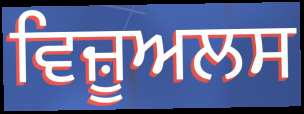
ਵਿਜ਼ੂਅਲਸ